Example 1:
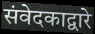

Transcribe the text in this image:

संवेदकाद्वारे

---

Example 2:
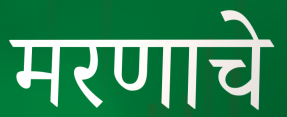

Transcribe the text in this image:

मरणाचे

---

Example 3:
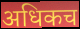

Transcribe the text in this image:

अधिकच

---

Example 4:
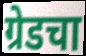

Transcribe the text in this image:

ग्रेडचा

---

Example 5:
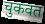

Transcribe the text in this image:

चुकवत